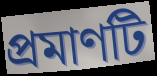
প্রমাণটি